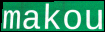
makou